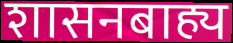
शासनबाह्य